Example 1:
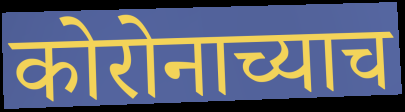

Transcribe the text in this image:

कोरोनाच्याच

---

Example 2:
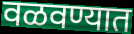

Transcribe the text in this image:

वळवण्यात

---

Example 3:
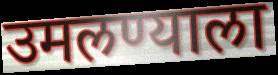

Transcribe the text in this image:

उमलण्याला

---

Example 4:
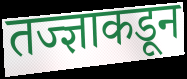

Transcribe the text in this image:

तज्ज्ञाकडून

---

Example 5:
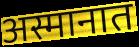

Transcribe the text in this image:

अस्मानात